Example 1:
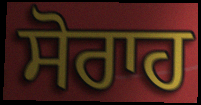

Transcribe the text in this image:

ਸੋਰਾਹ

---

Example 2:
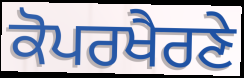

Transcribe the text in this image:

ਕੋਪਰਖੈਰਣੇ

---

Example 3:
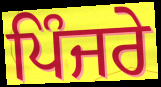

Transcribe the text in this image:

ਪਿੰਜਰੇ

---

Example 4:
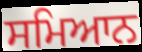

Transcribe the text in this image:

ਸਮਿਆਨ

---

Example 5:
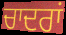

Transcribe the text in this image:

ਚਾਦਰਾਂ